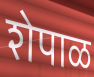
शेपाळ